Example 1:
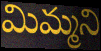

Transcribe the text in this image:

మిమ్మని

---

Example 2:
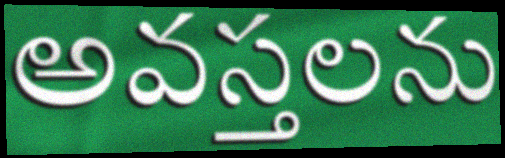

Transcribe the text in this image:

అవస్తలను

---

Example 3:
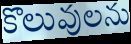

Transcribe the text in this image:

కొలువులను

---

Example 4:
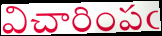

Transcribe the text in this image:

విచారింపఁ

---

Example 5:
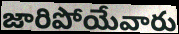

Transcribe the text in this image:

జారిపోయేవారు